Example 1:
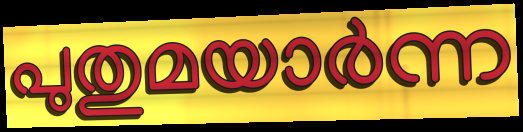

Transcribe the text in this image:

പുതുമയാർന്ന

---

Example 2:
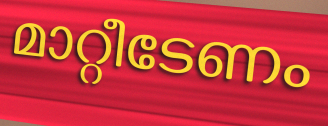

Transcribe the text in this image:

മാറ്റീടേണം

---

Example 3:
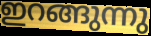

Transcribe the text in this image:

ഇറങ്ങുന്നു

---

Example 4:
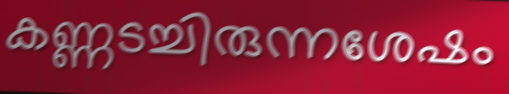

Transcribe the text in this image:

കണ്ണടച്ചിരുന്നശേഷം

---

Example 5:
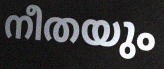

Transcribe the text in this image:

നീതയും